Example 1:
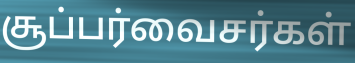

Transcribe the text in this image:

சூப்பர்வைசர்கள்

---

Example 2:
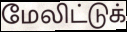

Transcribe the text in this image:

மேலிட்டுக்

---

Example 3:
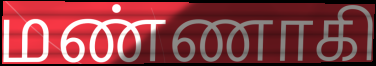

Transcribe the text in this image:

மண்ணாகி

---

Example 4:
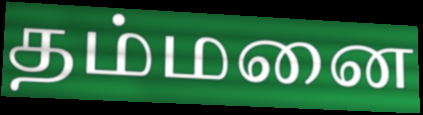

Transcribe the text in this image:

தம்மனை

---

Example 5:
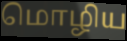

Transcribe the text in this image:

மொழிய